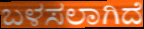
ಬಳಸಲಾಗಿದೆ